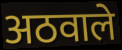
अठवाले